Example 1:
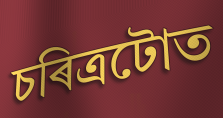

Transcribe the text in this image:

চৰিত্ৰটোত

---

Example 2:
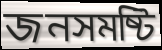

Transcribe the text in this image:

জনসমষ্টি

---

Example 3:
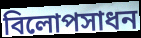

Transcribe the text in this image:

বিলোপসাধন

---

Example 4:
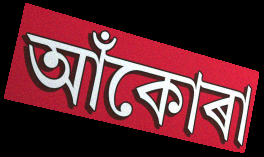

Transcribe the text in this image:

আঁকোৰা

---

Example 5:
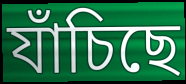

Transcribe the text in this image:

যাঁচিছে